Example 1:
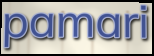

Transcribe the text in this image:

pamari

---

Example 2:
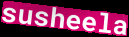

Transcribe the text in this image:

susheela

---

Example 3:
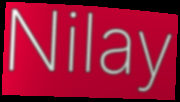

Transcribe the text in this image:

Nilay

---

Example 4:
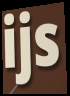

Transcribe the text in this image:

ijs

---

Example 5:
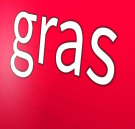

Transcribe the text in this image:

gras